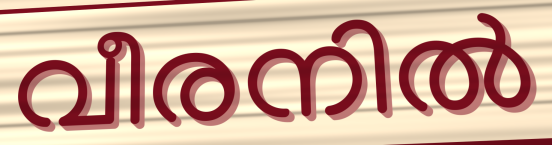
വീരനിൽ